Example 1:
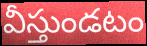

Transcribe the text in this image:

వీస్తుండటం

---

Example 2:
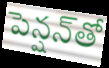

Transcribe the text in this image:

పెన్షన్‌తో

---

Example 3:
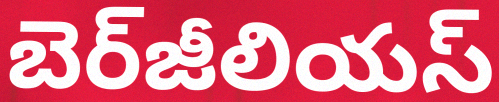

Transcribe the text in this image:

బెర్‌జీలియస్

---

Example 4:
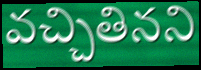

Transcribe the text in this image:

వచ్చితినని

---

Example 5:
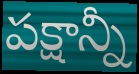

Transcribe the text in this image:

పక్షాన్నీ